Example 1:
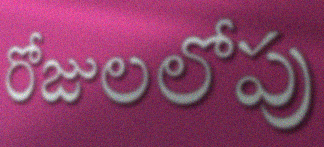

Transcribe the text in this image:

రోజులలోపు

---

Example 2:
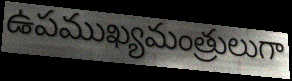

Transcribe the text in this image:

ఉపముఖ్యమంత్రులుగా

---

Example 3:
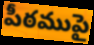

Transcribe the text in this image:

పీఠముపై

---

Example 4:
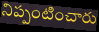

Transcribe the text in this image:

నిప్పంటించారు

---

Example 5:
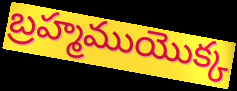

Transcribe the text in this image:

బ్రహ్మముయొక్క